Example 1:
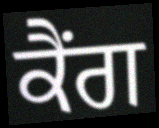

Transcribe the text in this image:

ਕੈਂਗ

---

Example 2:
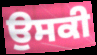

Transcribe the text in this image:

ਉਸਕੀ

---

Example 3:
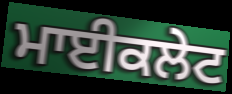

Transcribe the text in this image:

ਮਾਈਕਲੇਟ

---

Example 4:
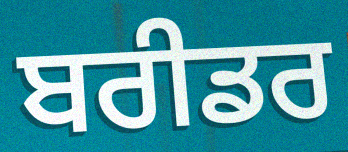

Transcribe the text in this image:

ਬਰੀਡਰ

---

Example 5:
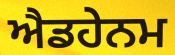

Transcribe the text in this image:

ਐਡਹੇਨਮ